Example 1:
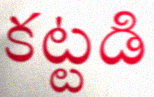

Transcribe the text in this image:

కట్టడి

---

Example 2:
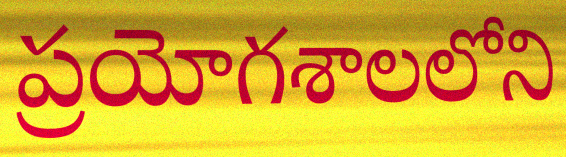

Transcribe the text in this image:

ప్రయోగశాలలోని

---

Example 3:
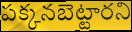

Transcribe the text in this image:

పక్కనబెట్టారని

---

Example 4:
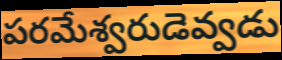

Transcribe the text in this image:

పరమేశ్వరుడెవ్వడు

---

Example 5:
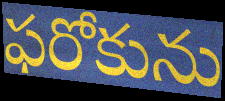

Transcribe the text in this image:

ఫరోకును